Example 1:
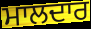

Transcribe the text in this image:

ਮਾਲਦਾਰ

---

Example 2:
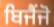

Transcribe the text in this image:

ਬਿਜੈਂਜੋ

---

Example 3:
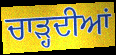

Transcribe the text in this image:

ਚਾੜ੍ਹਦੀਆਂ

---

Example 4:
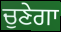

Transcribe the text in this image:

ਚੁਣੇਗਾ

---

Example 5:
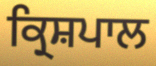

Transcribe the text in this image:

ਕ੍ਰਿਸ਼ਪਾਲ